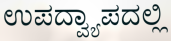
ಉಪದ್ವ್ಯಾಪದಲ್ಲಿ